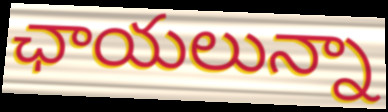
ఛాయలున్నా